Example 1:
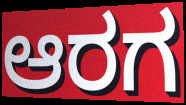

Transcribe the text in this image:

ಆರಗ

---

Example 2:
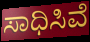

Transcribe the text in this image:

ಸಾಧಿಸಿವೆ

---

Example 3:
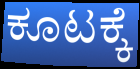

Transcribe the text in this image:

ಕೂಟಕ್ಕೆ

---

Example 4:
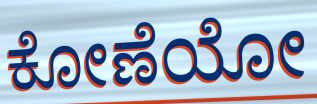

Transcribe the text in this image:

ಕೋಣೆಯೋ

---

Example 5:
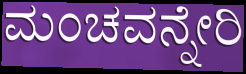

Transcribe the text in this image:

ಮಂಚವನ್ನೇರಿ